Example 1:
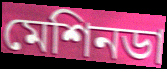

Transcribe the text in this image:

মেশিনডা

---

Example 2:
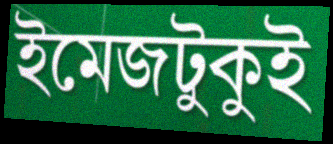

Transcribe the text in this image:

ইমেজটুকুই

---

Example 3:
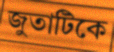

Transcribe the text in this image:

জুতাটিকে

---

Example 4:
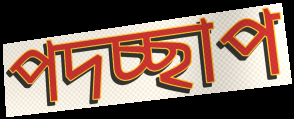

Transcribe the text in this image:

পদচ্ছাপ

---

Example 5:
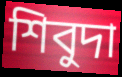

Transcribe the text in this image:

শিবুদা